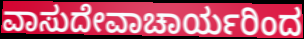
ವಾಸುದೇವಾಚಾರ್ಯರಿಂದ